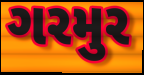
ગરમુર